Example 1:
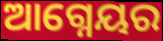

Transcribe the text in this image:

ଆଗ୍ନେୟର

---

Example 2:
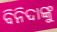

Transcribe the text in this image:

ବିନିଦାଙ୍କୁ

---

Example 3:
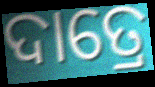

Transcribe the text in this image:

ଦାତ୍ରେ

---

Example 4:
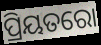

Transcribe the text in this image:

ପ୍ରିୟତରୋ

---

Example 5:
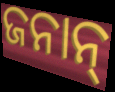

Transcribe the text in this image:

ଜନାନ୍